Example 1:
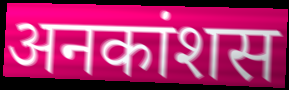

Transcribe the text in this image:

अनकांशस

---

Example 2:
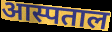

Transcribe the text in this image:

आस्पताल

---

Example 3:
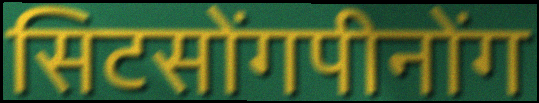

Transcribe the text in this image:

सिटसोंगपीनोंग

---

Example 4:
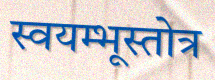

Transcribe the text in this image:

स्वयम्भूस्तोत्र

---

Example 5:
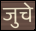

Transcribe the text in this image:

जुचे